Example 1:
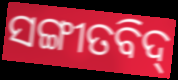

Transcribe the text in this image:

ସଙ୍ଗୀତବିଦ୍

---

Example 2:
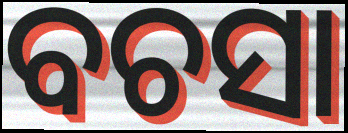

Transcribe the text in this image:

ବଚସା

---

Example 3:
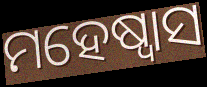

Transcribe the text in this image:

ମହେଷ୍ୱାସ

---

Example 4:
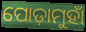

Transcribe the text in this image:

ପୋଡ଼ାମୁହାଁ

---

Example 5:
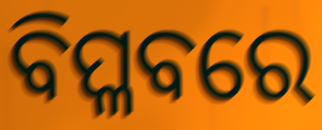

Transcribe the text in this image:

ବିପ୍ଳବରେ